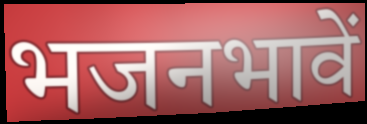
भजनभावें